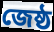
জেষ্ঠ